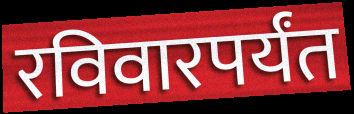
रविवारपर्यंत